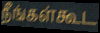
நீங்கள்கூட